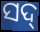
ସଦ୍